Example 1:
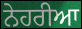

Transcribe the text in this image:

ਨੇਹਰੀਆ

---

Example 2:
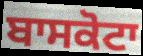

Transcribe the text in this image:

ਬਾਸਕੋਟਾ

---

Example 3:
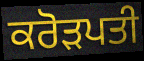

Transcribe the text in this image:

ਕਰੋੜਪਤੀ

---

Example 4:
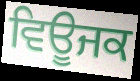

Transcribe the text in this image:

ਵਿਊਜਕ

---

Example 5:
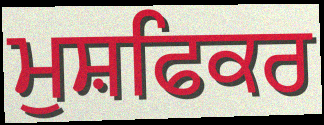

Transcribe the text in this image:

ਮੁਸ਼ਫਿਕਰ